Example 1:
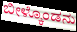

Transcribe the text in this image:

ಬೀಳ್ಕೊಂಡನು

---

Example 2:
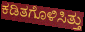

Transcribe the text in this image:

ಕಡಿತಗೊಳಿಸಿತ್ತು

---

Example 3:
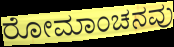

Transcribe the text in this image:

ರೋಮಾಂಚನವು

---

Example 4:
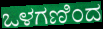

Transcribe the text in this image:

ಒಳಗಣಿಂದ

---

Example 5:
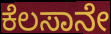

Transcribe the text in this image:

ಕೆಲಸಾನೇ